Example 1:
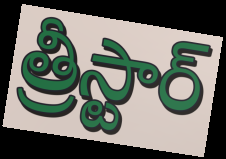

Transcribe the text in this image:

త్రీస్టార్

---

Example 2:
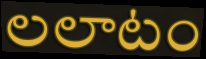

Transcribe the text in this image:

లలాటం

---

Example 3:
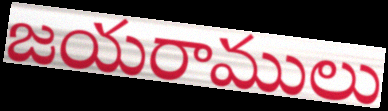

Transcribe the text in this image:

జయరాములు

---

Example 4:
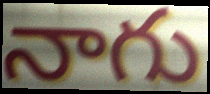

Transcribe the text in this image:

నాగు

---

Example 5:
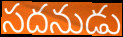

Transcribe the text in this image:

సదనుడు